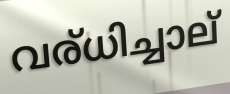
വര്ധിച്ചാല്